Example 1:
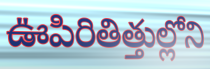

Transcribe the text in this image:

ఊపిరితిత్తుల్లోని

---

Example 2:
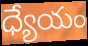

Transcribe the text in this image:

ధ్యేయం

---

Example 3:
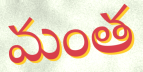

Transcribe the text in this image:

మంత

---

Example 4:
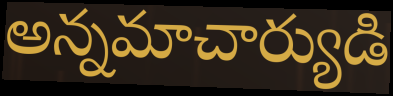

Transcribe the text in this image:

అన్నమాచార్యుడి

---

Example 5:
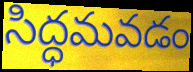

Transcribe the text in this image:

సిద్ధమవడం